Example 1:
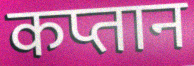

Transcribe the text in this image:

कप्‍तान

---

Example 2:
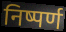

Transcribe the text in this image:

निष्पर्ण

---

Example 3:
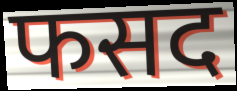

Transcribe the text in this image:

फसद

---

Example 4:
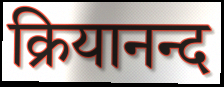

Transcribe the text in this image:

क्रियानन्द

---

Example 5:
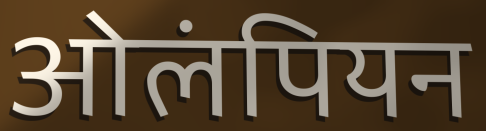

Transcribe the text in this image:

ओलंपियन